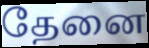
தேனை